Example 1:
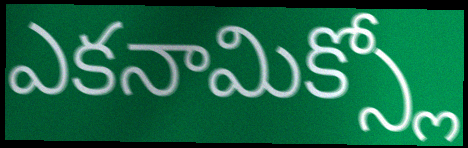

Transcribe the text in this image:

ఎకనామిక్స్లో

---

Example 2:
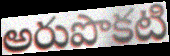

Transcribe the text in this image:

అరుపొకటి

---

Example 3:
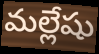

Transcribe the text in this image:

మల్లేషు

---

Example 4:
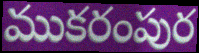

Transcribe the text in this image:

ముకరంపుర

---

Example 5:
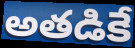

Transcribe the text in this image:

అతడికే